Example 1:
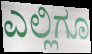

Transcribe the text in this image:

ಎಲ್ಲಿಗೂ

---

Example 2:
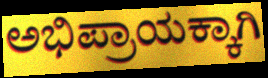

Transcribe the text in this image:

ಅಭಿಪ್ರಾಯಕ್ಕಾಗಿ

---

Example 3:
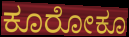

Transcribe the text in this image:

ಕೂರೋಕೂ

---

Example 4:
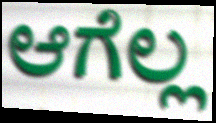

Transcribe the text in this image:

ಆಗೆಲ್ಲ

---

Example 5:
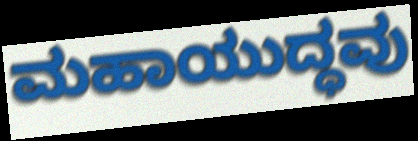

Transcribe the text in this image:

ಮಹಾಯುದ್ಧವು